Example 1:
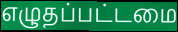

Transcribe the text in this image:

எழுதப்பட்டமை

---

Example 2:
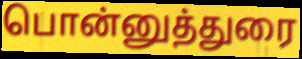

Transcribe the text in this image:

பொன்னுத்துரை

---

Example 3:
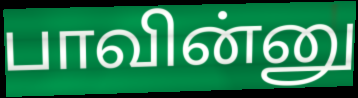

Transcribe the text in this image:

பாவின்னு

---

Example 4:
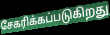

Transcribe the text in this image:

சேகரிக்கப்படுகிறது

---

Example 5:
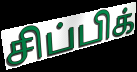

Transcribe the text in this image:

சிப்பிக்